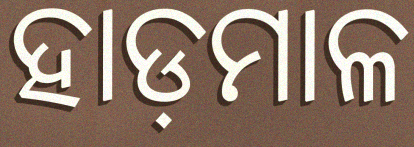
ହାଡ଼ମାଳ